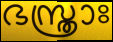
ഭസ്ത്രാഃ